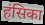
हंसिका